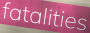
fatalities